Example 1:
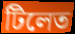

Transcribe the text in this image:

টিলেত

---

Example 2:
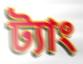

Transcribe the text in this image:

ট্যাং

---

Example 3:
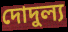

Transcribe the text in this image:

দোদুল্য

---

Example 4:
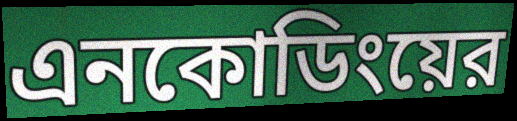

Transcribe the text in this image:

এনকোডিংয়ের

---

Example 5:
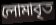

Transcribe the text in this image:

লোমাবৃত